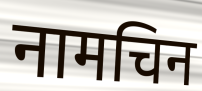
नामचिन